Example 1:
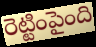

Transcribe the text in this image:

రెట్టింపైంది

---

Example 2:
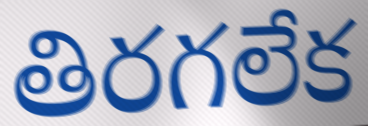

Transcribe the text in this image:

తిరగలేక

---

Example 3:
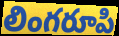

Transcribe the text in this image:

లింగరూపి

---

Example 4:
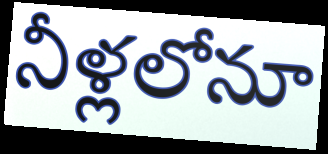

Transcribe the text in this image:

నీళ్లలోనూ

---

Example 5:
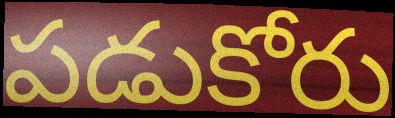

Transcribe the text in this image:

పడుకోరు